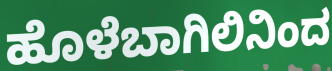
ಹೊಳೆಬಾಗಿಲಿನಿಂದ